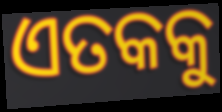
ଏତକକୁ